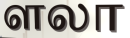
ளலா